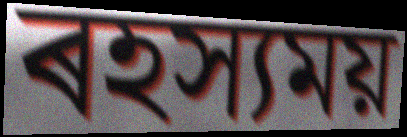
ৰহস্যময়